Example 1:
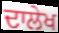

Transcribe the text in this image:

ਦਾਲੇਖ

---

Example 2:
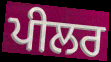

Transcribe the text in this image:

ਪੀਲਰ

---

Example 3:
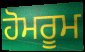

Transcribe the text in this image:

ਹੋਮਰੂਮ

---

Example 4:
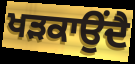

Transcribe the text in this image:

ਖੜਕਾਉਂਦੈ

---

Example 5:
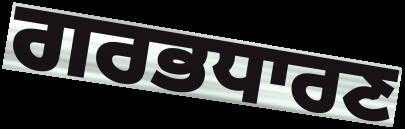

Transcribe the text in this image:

ਗਰਭਧਾਰਣ